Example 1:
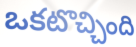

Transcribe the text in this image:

ఒకటొచ్చింది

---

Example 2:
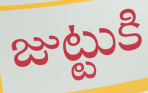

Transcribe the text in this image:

జుట్టుకి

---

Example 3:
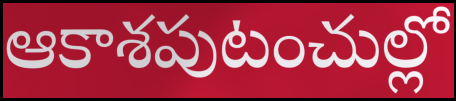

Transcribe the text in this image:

ఆకాశపుటంచుల్లో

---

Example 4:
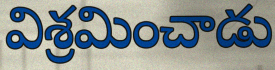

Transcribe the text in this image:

విశ్రమించాడు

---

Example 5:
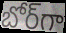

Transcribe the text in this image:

బోర్‌గా